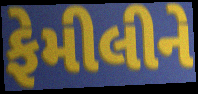
ફેમીલીને